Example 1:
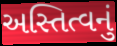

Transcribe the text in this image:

અસ્તિત્વનું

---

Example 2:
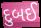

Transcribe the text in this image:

દુબઈ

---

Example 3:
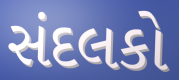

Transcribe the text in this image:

સંદલકો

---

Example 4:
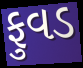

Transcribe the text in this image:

ફુવડ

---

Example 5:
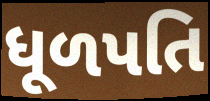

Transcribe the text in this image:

ધૂળપતિ